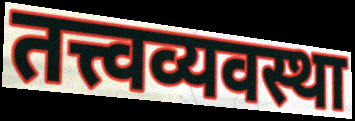
तत्त्वव्यवस्था